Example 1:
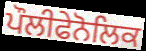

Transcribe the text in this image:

ਪੌਲੀਫੇਨੋਲਿਕ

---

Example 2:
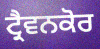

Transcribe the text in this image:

ਟ੍ਰੈਵਨਕੋਰ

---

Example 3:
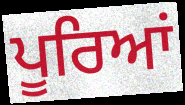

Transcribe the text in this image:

ਪੂਰਿਆਂ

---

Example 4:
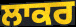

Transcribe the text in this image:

ਲਾਕਰ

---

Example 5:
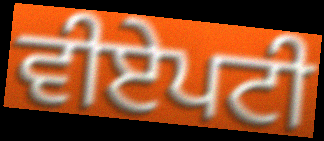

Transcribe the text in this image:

ਵੀਏਪਟੀ